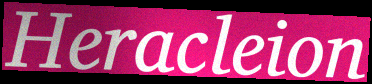
Heracleion